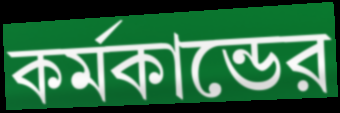
কর্মকান্ডের